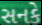
સનકે